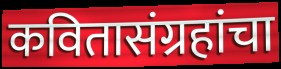
कवितासंग्रहांचा